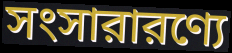
সংসারারণ্যে